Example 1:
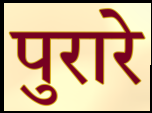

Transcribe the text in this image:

पुरारे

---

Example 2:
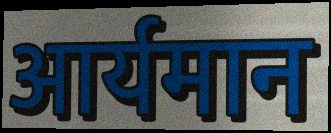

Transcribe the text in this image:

आर्यमान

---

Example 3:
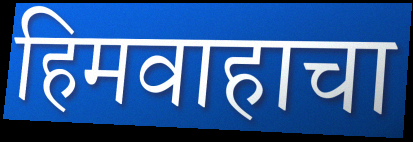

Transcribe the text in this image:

हिमवाहाचा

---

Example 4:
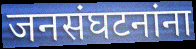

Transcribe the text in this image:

जनसंघटनांना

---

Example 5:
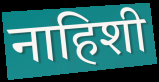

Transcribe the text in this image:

नाहिशी